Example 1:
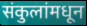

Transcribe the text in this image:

संकुलांमधून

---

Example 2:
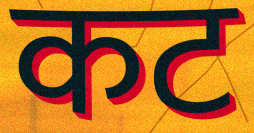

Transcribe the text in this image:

कट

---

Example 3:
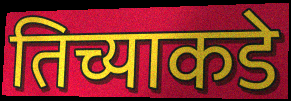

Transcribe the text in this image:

तिच्याकडे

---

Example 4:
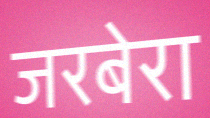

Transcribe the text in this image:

जरबेरा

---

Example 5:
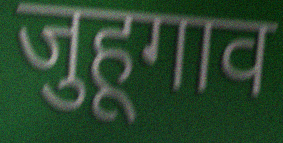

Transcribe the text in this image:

जुहूगाव